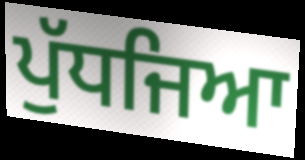
ਪੁੱਧਜਿਆ